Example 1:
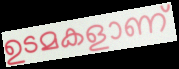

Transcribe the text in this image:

ഉടമകളാണ്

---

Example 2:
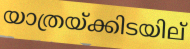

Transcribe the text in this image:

യാത്രയ്ക്കിടയില്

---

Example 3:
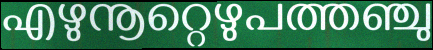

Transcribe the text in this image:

എഴുനൂറ്റെഴുപത്തഞ്ചു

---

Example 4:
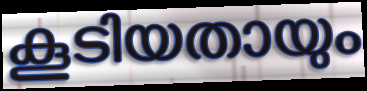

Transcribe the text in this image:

കൂടിയതായും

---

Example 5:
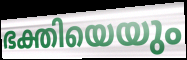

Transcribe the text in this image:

ഭക്തിയെയും